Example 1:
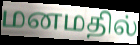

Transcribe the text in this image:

மனமதில்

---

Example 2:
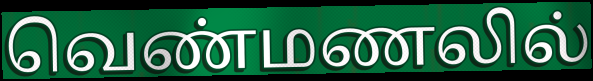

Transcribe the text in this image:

வெண்மணலில்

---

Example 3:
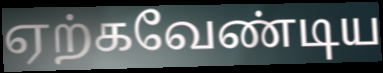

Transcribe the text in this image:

ஏற்கவேண்டிய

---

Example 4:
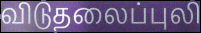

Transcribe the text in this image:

விடுதலைப்புலி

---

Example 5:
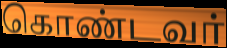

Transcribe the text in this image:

கொண்டவர்